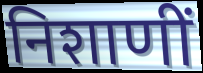
निशाणीं